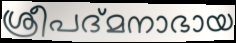
ശ്രീപദ്മനാഭായ